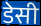
डेसी